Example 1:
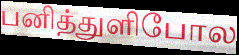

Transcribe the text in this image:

பனித்துளிபோல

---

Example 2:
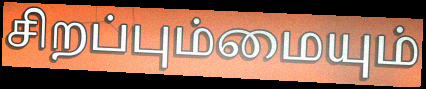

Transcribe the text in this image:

சிறப்பும்மையும்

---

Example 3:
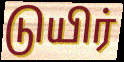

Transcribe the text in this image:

டுயிர்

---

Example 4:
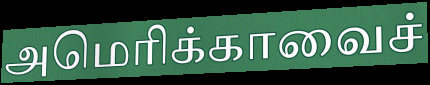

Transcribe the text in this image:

அமெரிக்காவைச்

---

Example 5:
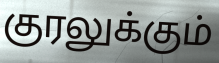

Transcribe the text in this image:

குரலுக்கும்